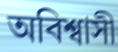
অবিশ্বাসী